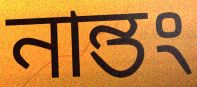
নান্তং